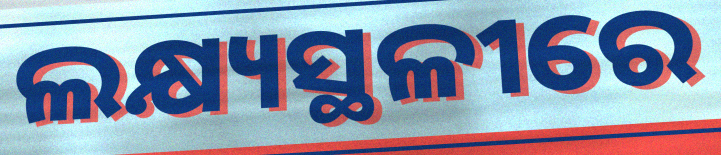
ଲକ୍ଷ୍ୟସ୍ଥଳୀରେ